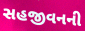
સહજીવનની